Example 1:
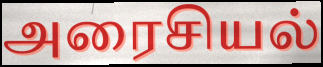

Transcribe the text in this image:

அரைசியல்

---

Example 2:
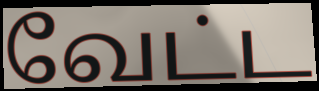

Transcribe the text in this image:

வேட்ட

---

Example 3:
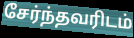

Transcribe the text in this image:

சேர்ந்தவரிடம்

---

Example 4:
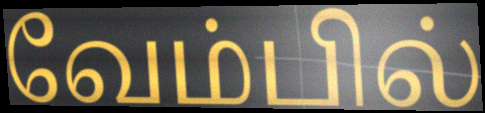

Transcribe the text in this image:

வேம்பில்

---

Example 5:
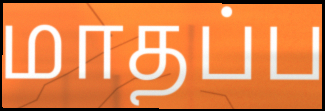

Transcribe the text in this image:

மாதப்ப